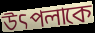
উৎপলাকে